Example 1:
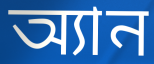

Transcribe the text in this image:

অ্যান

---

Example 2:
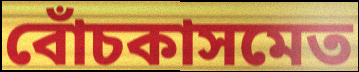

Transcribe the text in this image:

বোঁচকাসমেত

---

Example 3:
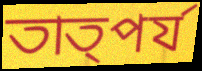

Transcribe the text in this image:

তাত্পর্য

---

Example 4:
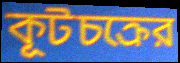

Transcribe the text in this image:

কূটচক্রের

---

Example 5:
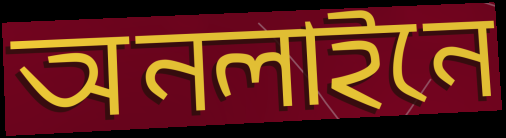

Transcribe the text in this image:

অনলাইনে